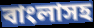
বাংলাসহ